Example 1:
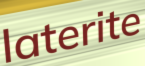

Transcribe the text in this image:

laterite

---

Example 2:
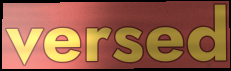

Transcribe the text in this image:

versed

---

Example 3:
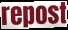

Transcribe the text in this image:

repost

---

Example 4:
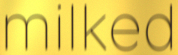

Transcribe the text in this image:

milked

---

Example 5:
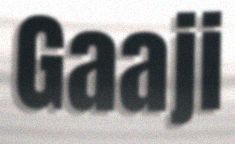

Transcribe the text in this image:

Gaaji